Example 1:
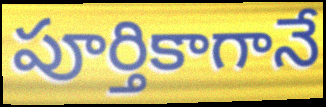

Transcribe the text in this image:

పూర్తికాగానే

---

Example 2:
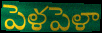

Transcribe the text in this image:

పెళపెళా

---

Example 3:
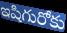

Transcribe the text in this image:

ఇషిగురోకు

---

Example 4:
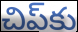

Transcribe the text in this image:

చిప్‌కు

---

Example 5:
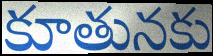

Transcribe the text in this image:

కూతునకు